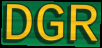
DGR